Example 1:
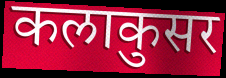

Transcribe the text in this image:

कलाकुसर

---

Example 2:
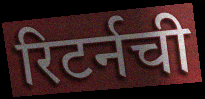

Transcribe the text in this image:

रिटर्नची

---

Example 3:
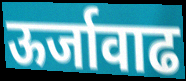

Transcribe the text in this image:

ऊर्जावाढ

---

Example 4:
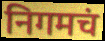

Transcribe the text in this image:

निगमचं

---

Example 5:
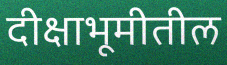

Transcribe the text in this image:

दीक्षाभूमीतील